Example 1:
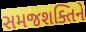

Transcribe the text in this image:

સમજશક્તિને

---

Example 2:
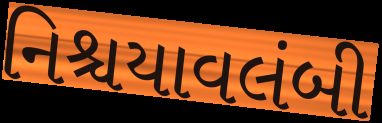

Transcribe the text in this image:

નિશ્ચયાવલંબી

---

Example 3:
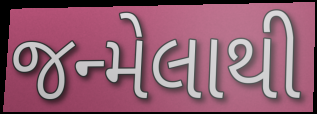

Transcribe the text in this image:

જન્મેલાથી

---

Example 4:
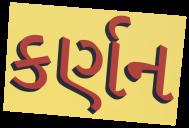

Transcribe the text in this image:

કર્ણન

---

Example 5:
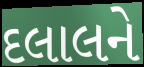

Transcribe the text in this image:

દલાલને